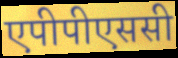
एपीपीएससी